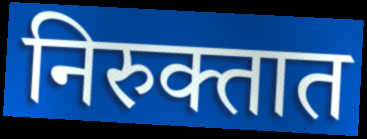
निरुक्तात